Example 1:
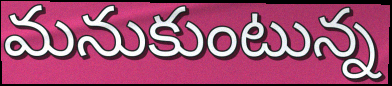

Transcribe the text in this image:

మనుకుంటున్న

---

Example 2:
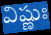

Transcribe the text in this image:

విష్ణుః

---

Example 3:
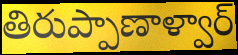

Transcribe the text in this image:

తిరుప్పాణాళ్వార్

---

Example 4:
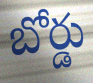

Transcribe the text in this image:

బోర్డు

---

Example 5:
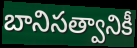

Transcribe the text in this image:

బానిసత్వానికీ